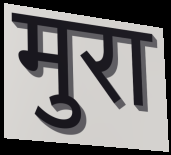
मुरा